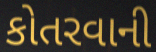
કોતરવાની